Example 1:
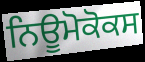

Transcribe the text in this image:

ਨਿਊਮੋਕੋਕਸ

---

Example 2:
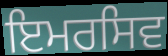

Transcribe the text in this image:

ਇਮਰਸਿਵ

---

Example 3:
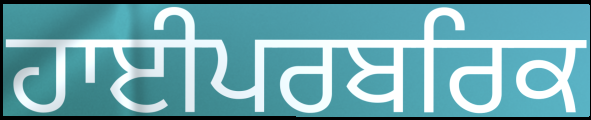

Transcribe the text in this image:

ਹਾਈਪਰਬਰਿਕ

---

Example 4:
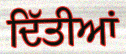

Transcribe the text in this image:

ਦਿੱਤੀਆਂ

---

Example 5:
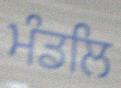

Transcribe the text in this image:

ਮੰਡਲਿ